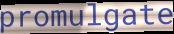
promulgate